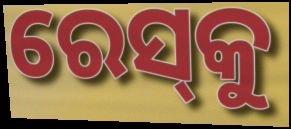
ରେସ୍‌କୁ